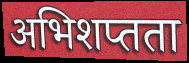
अभिशप्तता